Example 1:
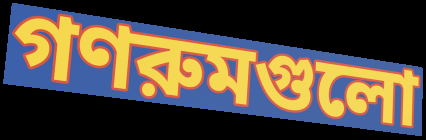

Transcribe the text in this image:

গণরুমগুলো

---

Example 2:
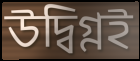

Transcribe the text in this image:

উদ্বিগ্নই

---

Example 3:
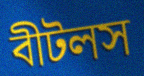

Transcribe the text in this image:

বীটলস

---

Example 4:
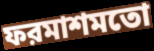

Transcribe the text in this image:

ফরমাশমতো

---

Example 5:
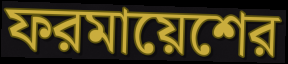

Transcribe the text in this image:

ফরমায়েশের